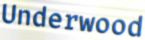
Underwood